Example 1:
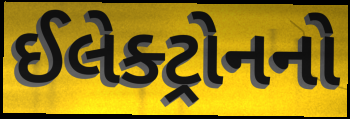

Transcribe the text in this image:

ઈલેક્ટ્રોનનો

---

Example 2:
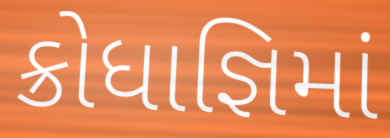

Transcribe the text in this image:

ક્રોધાજ્ઞિમાં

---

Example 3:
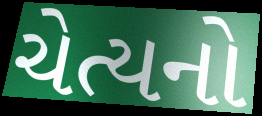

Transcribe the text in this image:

ચેત્યનો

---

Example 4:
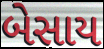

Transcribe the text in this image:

બેસાય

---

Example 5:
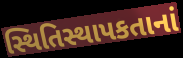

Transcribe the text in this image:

સ્થિતિસ્થાપકતાનાં